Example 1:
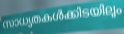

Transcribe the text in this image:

സാധ്യതകൾക്കിടയിലും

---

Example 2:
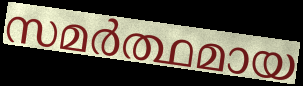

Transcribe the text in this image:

സമർത്ഥമായ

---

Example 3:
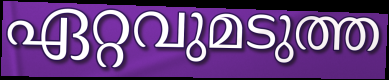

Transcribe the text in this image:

ഏറ്റവുമടുത്ത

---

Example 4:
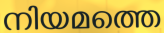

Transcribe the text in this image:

നിയമത്തെ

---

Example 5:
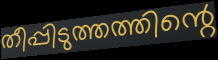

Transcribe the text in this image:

തീപ്പിടുത്തത്തിന്റെ